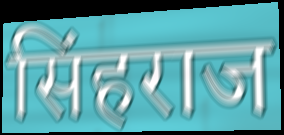
सिंहराज